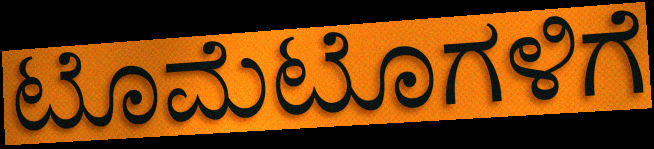
ಟೊಮೆಟೊಗಳಿಗೆ